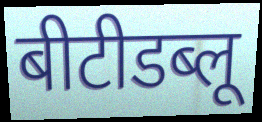
बीटीडब्लू